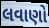
લવાણો